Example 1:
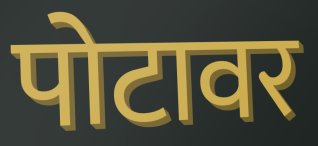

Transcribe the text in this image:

पोटावर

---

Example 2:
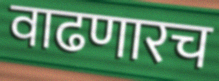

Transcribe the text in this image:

वाढणारच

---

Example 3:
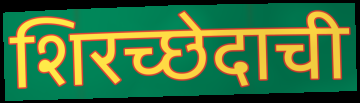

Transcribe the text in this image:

शिरच्छेदाची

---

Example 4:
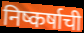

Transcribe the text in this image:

निष्कर्षाची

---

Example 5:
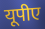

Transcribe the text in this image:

यूपीए